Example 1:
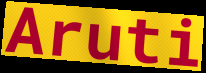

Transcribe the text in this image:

Aruti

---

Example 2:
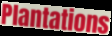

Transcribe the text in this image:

Plantations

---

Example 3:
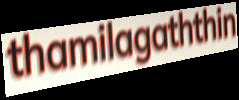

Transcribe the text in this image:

thamilagaththin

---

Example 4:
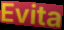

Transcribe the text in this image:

Evita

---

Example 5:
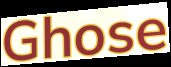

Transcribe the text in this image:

Ghose